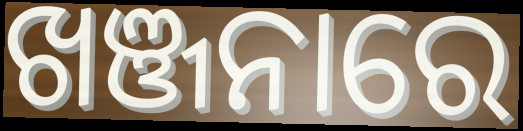
ଖଞ୍ଜନାରେ